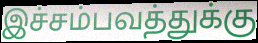
இச்சம்பவத்துக்கு